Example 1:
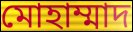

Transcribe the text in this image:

মোহাম্মাদ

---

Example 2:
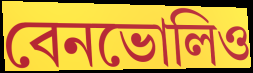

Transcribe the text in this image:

বেনভোলিও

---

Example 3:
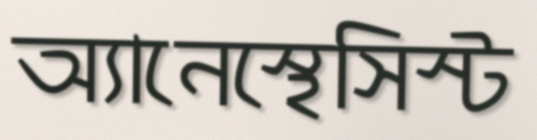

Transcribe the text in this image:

অ্যানেস্থেসিস্ট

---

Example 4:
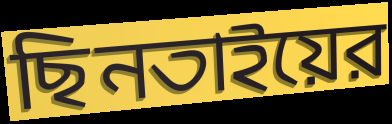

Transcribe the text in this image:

ছিনতাইয়ের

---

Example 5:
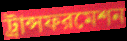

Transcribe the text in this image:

ট্রান্সফরমেশন